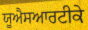
ਯੂਐਸਆਰਟੀਕੇ